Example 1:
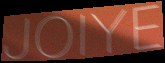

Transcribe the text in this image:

JOIYE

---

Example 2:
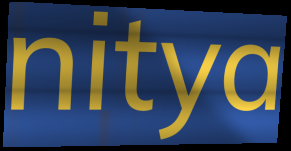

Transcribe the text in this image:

nitya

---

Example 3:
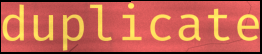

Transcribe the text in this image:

duplicate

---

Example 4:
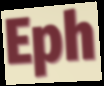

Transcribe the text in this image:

Eph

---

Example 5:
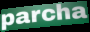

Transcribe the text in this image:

parcha